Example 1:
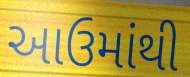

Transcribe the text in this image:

આઉમાંથી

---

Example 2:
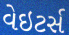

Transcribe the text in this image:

વેઇટર્સ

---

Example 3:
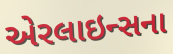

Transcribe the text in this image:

એરલાઇન્સના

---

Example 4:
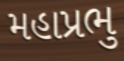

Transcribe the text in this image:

મહાપ્રભુ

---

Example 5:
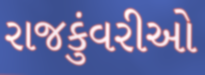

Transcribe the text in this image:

રાજકુંવરીઓ